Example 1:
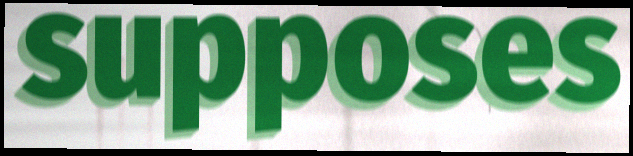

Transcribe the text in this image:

supposes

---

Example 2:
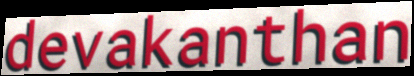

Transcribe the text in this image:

devakanthan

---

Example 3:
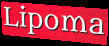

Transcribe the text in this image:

Lipoma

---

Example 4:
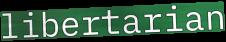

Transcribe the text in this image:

libertarian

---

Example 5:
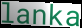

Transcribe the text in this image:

lanka